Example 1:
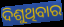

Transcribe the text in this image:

ଦିଶୁଥିବାର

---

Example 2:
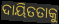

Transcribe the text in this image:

ଦାୟିତତାକୁ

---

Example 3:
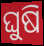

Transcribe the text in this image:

ଘୁଷି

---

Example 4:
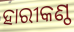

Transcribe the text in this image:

ହାରୀକଣ୍ଠ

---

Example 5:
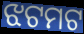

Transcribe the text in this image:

ଝଟମଟ